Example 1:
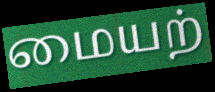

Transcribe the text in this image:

மையற்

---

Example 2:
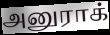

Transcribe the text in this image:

அனுராக்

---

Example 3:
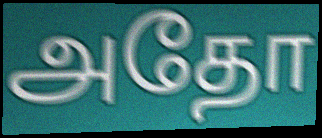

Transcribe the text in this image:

அதோ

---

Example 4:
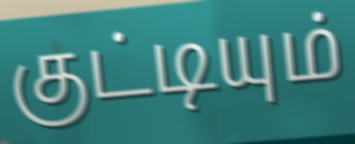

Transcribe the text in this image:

குட்டியும்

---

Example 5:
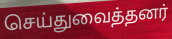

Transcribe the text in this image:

செய்துவைத்தனர்